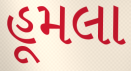
હૂમલા